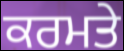
ਕਰਮਤੇ